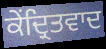
ਕੇਂਦ੍ਰਿਤਵਾਦ